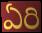
ఏరి